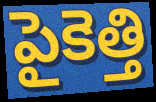
పైకెత్తి